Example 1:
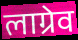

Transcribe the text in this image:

लाग्रेव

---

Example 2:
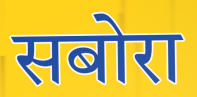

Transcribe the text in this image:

सबोरा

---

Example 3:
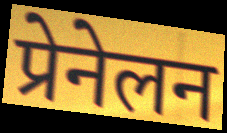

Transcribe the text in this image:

प्रेनेलन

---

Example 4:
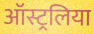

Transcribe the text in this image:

ऑस्ट्रलिया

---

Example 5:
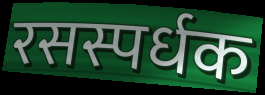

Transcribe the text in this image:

रसस्पर्धक